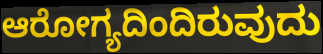
ಆರೋಗ್ಯದಿಂದಿರುವುದು